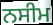
ਨਸੀਮ